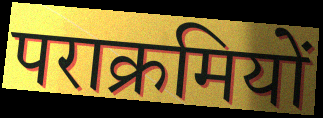
पराक्रमियों